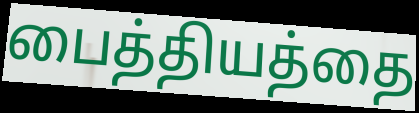
பைத்தியத்தை